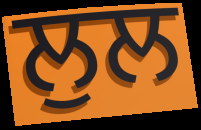
ਲੁਲ